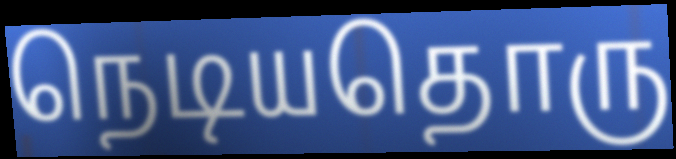
நெடியதொரு